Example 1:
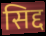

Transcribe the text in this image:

सिद्द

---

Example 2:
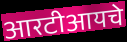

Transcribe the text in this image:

आरटीआयचे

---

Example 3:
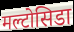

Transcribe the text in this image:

मल्टोसिडा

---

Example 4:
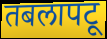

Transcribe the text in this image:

तबलापटू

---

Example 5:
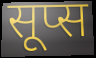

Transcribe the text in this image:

सूप्स